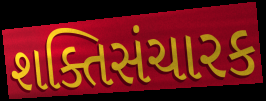
શક્તિસંચારક